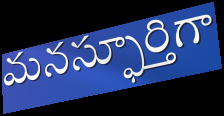
మనస్ఫూర్తిగా